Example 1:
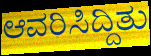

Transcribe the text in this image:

ಆವರಿಸಿದ್ದಿತು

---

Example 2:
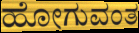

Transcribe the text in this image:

ಹೋಗುವಂತ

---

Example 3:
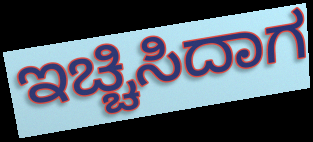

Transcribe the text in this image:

ಇಚ್ಚಿಸಿದಾಗ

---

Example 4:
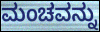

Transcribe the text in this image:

ಮಂಚವನ್ನು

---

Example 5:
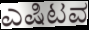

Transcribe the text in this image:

ಎಷಿಟವ